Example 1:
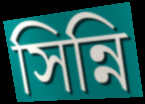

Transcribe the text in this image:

সিন্নি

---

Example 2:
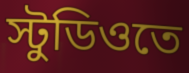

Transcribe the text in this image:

স্টুডিওতে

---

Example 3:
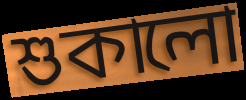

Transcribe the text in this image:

শুকালো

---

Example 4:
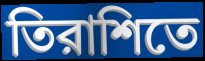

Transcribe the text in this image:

তিরাশিতে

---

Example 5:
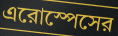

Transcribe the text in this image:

এরোস্পেসের